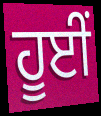
ਹੂਈਂ